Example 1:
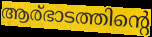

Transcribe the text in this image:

ആര്ഭാടത്തിന്റെ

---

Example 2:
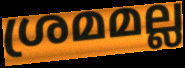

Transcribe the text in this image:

ശ്രമമല്ല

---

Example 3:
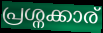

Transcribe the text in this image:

പ്രശ്നക്കാര്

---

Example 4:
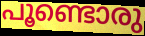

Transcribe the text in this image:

പൂണ്ടൊരു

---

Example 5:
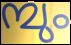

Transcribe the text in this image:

മ്പും